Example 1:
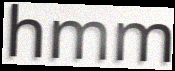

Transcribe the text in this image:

hmm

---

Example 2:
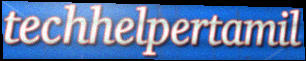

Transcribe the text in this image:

techhelpertamil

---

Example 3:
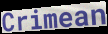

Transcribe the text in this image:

Crimean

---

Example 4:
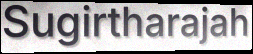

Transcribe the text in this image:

Sugirtharajah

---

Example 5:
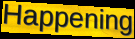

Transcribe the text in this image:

Happening